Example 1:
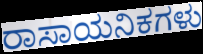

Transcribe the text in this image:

ರಾಸಾಯನಿಕಗಳು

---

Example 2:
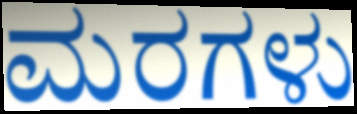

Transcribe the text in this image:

ಮರಗಳು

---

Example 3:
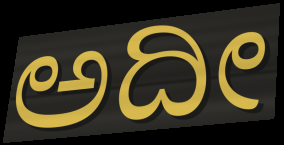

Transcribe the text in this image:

ಅದೀ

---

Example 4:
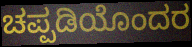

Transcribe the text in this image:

ಚಪ್ಪಡಿಯೊಂದರ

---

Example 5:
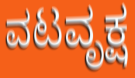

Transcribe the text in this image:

ವಟವೃಕ್ಷ